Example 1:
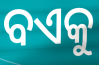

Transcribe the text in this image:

ବଏକୁ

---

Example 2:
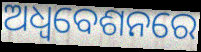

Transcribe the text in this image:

ଅଧ୍ଵବେଶନରେ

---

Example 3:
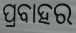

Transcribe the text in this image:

ପ୍ରବାହର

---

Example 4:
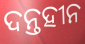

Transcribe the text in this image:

ଦନ୍ତହୀନ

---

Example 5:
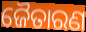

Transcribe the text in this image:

ଜୈତାରଣ